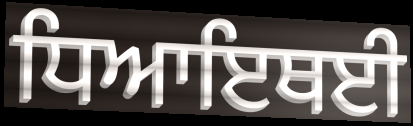
ਧਿਆਇਥਈ